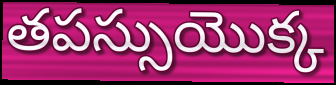
తపస్సుయొక్క